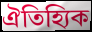
ঐতিহ্যিক